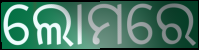
ଲୋମରେ